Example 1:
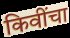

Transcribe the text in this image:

किवींचा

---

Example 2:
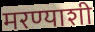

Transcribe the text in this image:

मरण्याशी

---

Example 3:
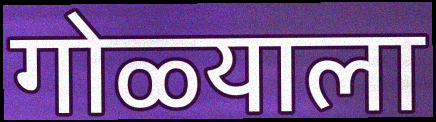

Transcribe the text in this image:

गोळ्याला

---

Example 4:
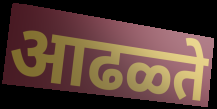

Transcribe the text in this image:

आढळ्ते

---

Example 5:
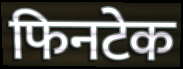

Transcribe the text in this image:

फिनटेक